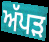
ਅੱਪੜ